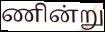
ணின்று